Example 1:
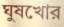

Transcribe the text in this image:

ঘুষখোর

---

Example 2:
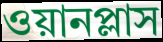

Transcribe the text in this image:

ওয়ানপ্লাস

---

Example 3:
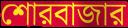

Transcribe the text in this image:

শোরবাজার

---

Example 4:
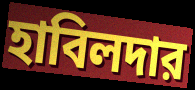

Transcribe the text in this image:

হাবিলদার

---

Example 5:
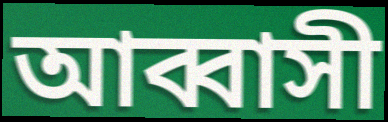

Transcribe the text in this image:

আব্বাসী